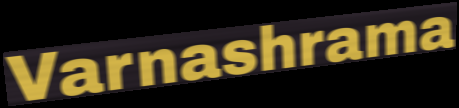
Varnashrama